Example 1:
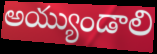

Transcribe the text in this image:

అయ్యుండాలి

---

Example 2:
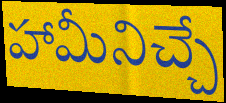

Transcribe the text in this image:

హామీనిచ్చే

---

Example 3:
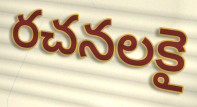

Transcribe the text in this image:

రచనలకై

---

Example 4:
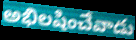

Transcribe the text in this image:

అభిలషించేవాడు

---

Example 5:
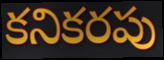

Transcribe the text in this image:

కనికరపు